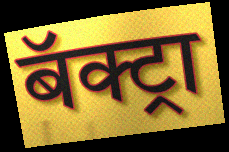
बॅक्ट्रा